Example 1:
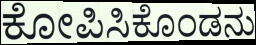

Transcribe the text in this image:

ಕೋಪಿಸಿಕೊಂಡನು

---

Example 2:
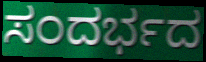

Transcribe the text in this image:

ಸಂದರ್ಭದ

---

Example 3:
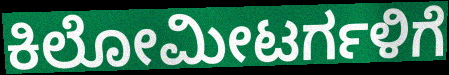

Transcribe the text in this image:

ಕಿಲೋಮೀಟರ್ಗಳಿಗೆ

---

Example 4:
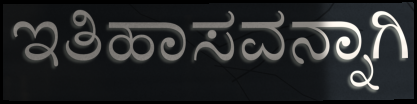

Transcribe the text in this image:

ಇತಿಹಾಸವನ್ನಾಗಿ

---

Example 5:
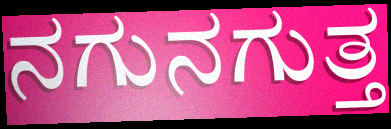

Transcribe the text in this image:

ನಗುನಗುತ್ತ